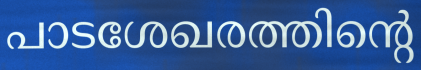
പാടശേഖരത്തിന്റെ